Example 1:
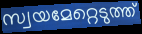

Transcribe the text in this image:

സ്വയമേറ്റെടുത്ത്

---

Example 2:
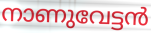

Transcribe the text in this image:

നാണുവേട്ടൻ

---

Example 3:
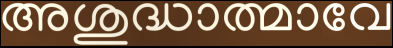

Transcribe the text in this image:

അശുദ്ധാത്മാവേ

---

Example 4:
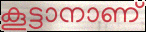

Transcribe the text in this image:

കൂട്ടാനാണ്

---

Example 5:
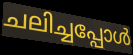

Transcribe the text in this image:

ചലിച്ചപ്പോൾ